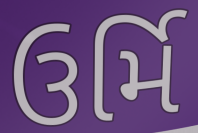
ઉર્મિ